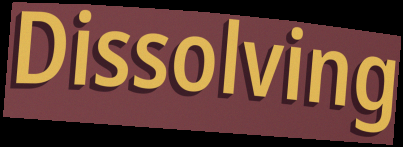
Dissolving